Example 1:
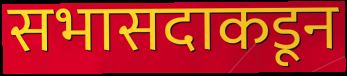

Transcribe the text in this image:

सभासदाकडून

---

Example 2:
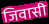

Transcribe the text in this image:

जिवासी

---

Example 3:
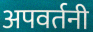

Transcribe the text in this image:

अपवर्तनी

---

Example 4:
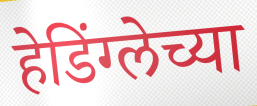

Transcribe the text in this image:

हेडिंग्लेच्या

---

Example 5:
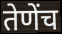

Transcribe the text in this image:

तेणेंच